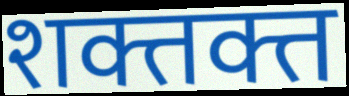
शक्तक्त